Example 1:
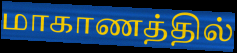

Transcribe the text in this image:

மாகாணத்தில்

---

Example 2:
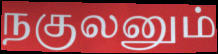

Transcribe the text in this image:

நகுலனும்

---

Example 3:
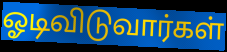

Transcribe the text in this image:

ஓடிவிடுவார்கள்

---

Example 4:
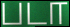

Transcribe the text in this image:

படா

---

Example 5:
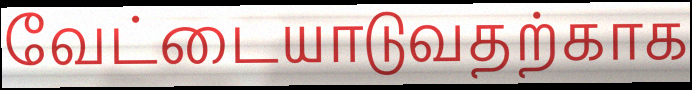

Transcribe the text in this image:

வேட்டையாடுவதற்காக